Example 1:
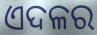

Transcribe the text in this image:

ଏଦଳର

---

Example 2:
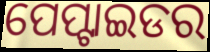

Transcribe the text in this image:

ପେପ୍ଟାଇଡର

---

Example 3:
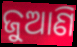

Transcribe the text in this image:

ଜୁଆଣି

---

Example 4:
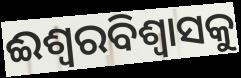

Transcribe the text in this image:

ଈଶ୍ୱରବିଶ୍ୱାସକୁ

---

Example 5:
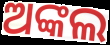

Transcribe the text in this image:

ଅଙ୍କଲ